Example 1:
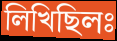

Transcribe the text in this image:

লিখিছিলঃ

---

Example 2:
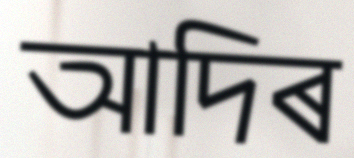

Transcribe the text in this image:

আদিৰ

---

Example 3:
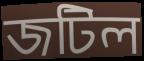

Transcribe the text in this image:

জটিল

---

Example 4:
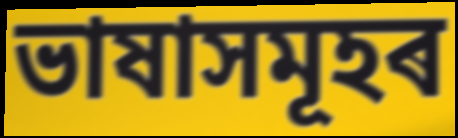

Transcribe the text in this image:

ভাষাসমূহৰ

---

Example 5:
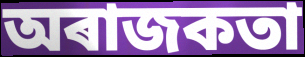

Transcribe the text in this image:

অৰাজকতা